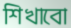
শিখাবো